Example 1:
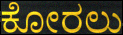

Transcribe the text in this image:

ಕೋರಲು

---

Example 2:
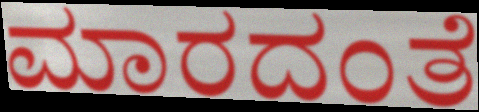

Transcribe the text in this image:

ಮಾರದಂತೆ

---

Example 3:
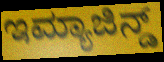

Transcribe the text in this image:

ಇಮ್ಯಾಜಿನ್ಡ್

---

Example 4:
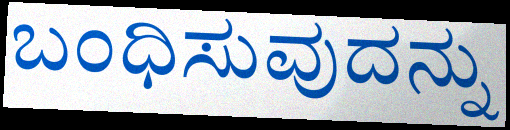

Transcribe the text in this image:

ಬಂಧಿಸುವುದನ್ನು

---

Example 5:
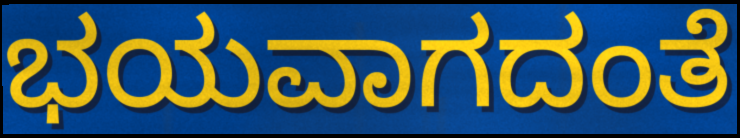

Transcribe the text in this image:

ಭಯವಾಗದಂತೆ